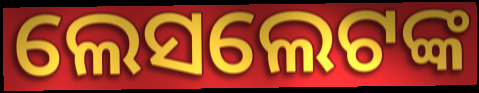
ଲେସଲେଟଙ୍କ